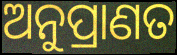
ଅନୁପ୍ରାଣତ